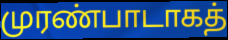
முரண்பாடாகத்